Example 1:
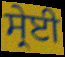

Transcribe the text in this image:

ਸ੍ਰੇਈ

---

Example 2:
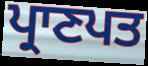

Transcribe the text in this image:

ਪ੍ਰਾਣਪਤ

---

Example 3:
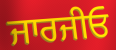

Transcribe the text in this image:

ਜਾਰਜੀਓ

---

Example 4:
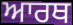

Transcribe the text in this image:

ਆਰਥ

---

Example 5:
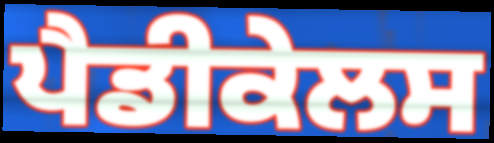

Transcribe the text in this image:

ਪੈਡੀਕੇਲਸ